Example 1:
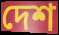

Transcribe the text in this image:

দেশ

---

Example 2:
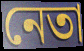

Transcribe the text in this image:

নেতা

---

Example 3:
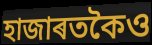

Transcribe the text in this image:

হাজাৰতকৈও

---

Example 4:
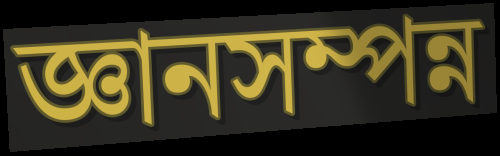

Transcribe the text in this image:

জ্ঞানসম্পন্ন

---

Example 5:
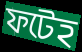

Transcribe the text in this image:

ফটেহ